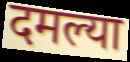
दमल्या